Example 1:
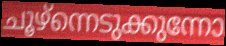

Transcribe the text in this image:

ചൂഴ്ന്നെടുക്കുന്നോ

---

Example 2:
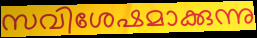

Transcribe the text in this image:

സവിശേഷമാക്കുന്നു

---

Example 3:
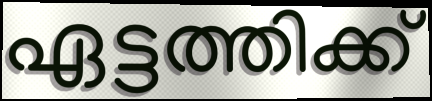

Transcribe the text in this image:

ഏട്ടത്തിക്ക്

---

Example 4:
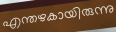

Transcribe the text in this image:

എന്തഴകായിരുന്നു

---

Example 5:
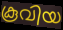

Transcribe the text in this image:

കൂവിയ